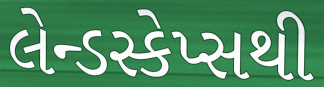
લેન્ડસ્કેપ્સથી